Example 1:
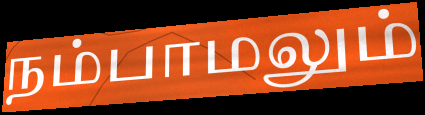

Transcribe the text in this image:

நம்பாமலும்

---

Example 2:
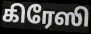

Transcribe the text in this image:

கிரேஸி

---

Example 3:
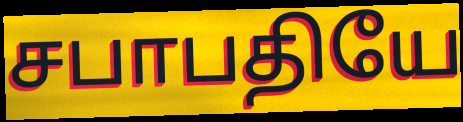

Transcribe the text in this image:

சபாபதியே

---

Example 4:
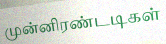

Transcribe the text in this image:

முன்னிரண்டடிகள்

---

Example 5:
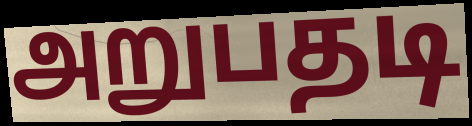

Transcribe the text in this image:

அறுபதடி